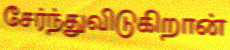
சேர்ந்துவிடுகிறான்